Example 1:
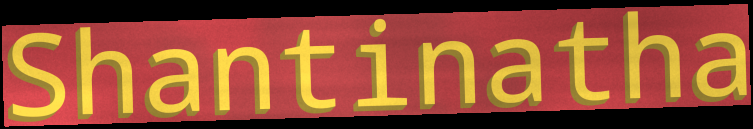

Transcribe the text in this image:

Shantinatha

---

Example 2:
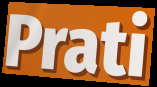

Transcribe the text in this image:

Prati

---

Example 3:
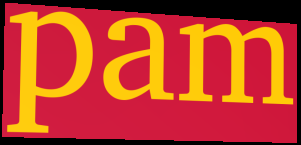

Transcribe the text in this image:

pam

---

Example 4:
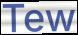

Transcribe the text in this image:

Tew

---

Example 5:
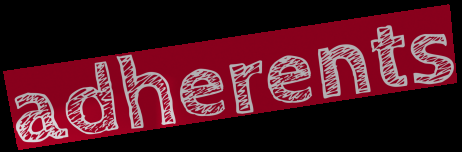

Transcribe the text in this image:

adherents